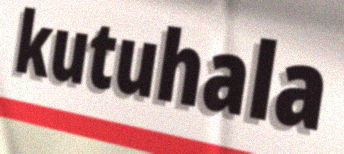
kutuhala